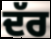
ਦੱਰ